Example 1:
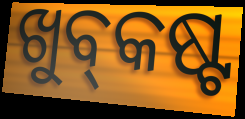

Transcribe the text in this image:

ଖୁବ୍‌କଷ୍ଟ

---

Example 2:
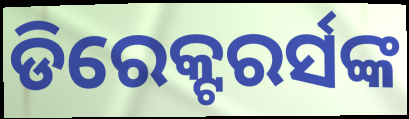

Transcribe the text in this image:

ଡିରେକ୍ଟରର୍ସଙ୍କ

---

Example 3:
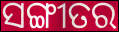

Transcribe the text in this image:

ସଙ୍ଗୀତର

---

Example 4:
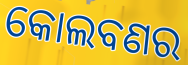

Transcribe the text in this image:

କୋଲବଣର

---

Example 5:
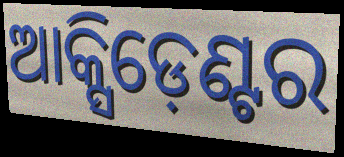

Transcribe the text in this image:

ଆକ୍ସିଡ଼େଣ୍ଟର